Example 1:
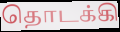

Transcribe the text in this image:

தொடக்கி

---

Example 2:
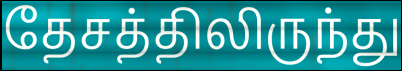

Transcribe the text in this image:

தேசத்திலிருந்து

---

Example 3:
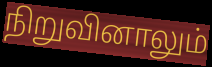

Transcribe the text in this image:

நிறுவினாலும்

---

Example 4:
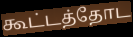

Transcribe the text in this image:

கூட்டத்தோட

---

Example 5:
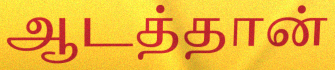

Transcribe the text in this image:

ஆடத்தான்